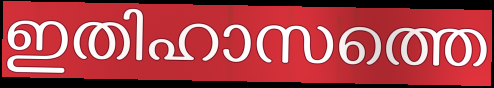
ഇതിഹാസത്തെ